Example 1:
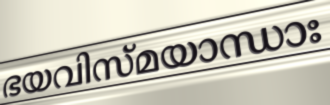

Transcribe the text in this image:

ഭയവിസ്മയാന്ധാഃ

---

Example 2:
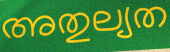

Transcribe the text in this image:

അതുല്യത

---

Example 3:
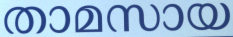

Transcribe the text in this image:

താമസായ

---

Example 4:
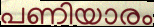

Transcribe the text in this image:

പണിയാരം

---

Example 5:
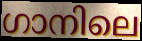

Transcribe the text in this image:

ഗാനിലെ